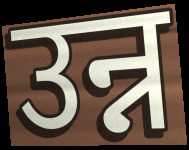
उन्न